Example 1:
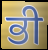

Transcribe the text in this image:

ਭੀ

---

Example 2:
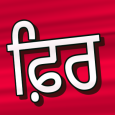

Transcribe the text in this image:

ਫ਼ਿਰ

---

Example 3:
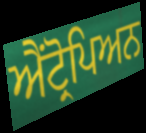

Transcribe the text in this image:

ਐਂਟ੍ਰੋਪਿਅਨ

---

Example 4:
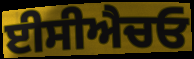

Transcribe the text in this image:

ਈਸੀਐਚਓ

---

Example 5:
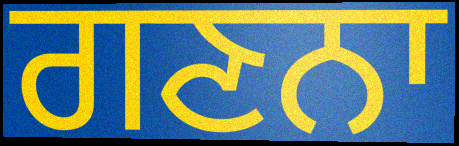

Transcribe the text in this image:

ਗਣਨਾ